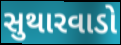
સુથારવાડો